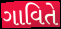
ગાવિતે